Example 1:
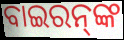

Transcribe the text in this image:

ବାଇରନ୍‌ଙ୍କ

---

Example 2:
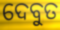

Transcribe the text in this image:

ଦେବୁତ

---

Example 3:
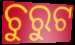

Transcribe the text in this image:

ଚୁରୁଟ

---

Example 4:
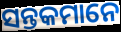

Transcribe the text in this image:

ସନ୍ତକମାନେ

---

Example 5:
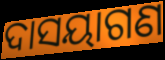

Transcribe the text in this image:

ଦାସୟାଗଣ